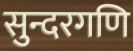
सुन्दरगणि